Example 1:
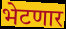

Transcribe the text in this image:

भेटणार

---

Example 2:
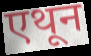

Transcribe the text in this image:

एथून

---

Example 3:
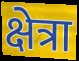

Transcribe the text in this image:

क्षेत्रा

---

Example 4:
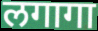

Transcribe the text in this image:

लगागा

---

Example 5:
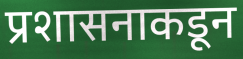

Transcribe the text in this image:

प्रशासनाकडून